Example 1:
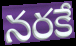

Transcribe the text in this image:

నరకే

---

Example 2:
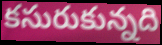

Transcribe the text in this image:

కసురుకున్నది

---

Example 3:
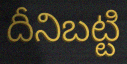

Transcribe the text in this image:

దీనిబట్టి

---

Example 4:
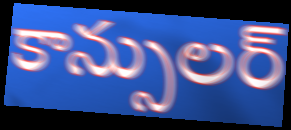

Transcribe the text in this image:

కాన్సులర్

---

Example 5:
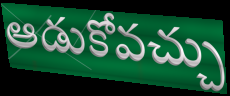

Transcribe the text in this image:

ఆడుకోవచ్చు